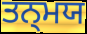
ਤਨ੍ਮਯ